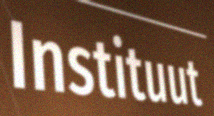
Instituut